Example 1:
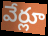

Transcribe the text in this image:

వేర్లూ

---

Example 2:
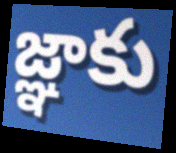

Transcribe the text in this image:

జ్ఞాకు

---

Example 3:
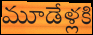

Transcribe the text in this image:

మూడేళ్లకి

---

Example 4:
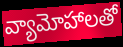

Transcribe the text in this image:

వ్యామోహాలతో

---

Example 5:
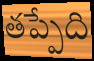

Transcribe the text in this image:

తప్పేది